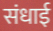
संधाई